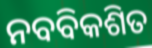
ନବବିକଶିତ